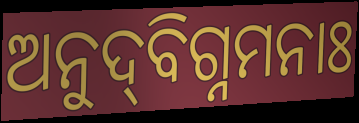
ଅନୁଦ୍‌ବିଗ୍ନମନାଃ